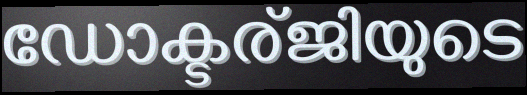
ഡോക്ടര്ജിയുടെ